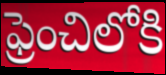
ఫ్రెంచిలోకి